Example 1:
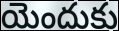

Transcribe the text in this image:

యెందుకు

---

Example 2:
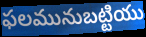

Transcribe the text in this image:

ఫలమునుబట్టియు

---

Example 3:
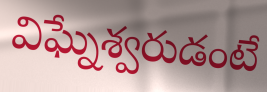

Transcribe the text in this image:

విఘ్నేశ్వరుడంటే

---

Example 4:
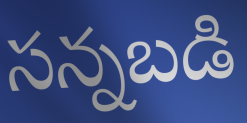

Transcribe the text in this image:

సన్నబడి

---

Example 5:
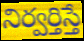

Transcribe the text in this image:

నిర్వర్తిస్తే